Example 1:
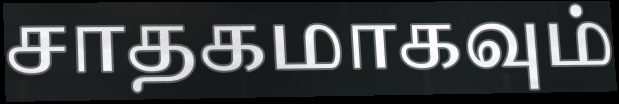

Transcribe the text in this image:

சாதகமாகவும்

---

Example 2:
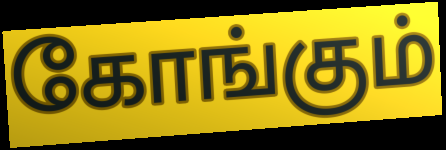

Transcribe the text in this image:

கோங்கும்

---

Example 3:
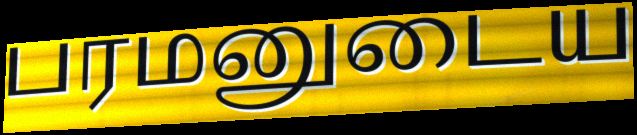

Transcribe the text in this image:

பரமனுடைய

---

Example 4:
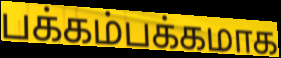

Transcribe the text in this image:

பக்கம்பக்கமாக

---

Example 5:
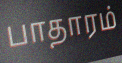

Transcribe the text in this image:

பாதாரம்